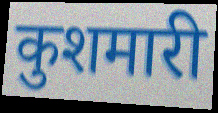
कुशमारी